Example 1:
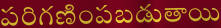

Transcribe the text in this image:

పరిగణింపబడుతాయి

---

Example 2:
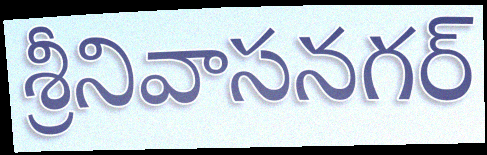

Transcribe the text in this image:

శ్రీనివాసనగర్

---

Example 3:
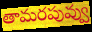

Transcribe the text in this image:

తామరపువ్వు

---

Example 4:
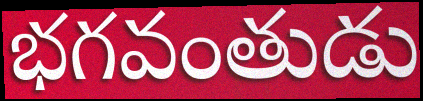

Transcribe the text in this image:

భగవంతుడు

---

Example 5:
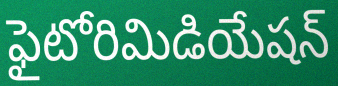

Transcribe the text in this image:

ఫైటోరిమిడియేషన్